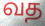
வத